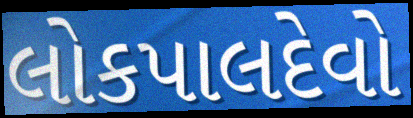
લોકપાલદેવો